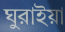
ঘুরাইয়া